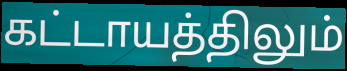
கட்டாயத்திலும்